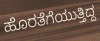
ಹೊರತೆಗೆಯುತ್ತಿದ್ದ